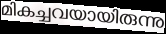
മികച്ചവയായിരുന്നു